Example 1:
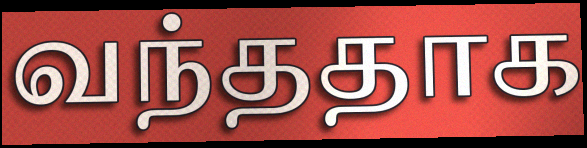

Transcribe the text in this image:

வந்ததாக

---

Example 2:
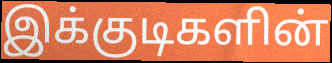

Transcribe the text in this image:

இக்குடிகளின்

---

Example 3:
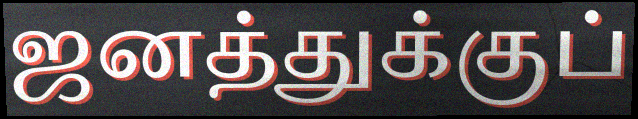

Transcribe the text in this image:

ஜனத்துக்குப்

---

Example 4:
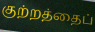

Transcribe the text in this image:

குற்றத்தைப்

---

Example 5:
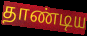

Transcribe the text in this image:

தாண்டிய